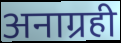
अनाग्रही